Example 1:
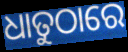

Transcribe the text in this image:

ଧାତୁଠାରେ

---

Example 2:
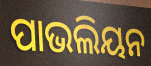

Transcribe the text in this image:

ପାଭଲିୟନ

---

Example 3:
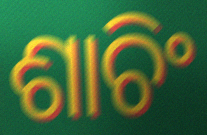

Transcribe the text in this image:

ଶାଚିଂ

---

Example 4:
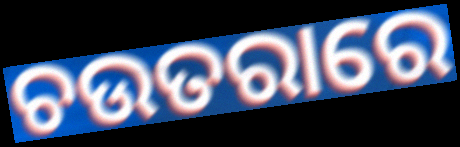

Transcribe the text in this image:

ଚଉତରାରେ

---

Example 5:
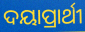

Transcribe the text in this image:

ଦୟାପ୍ରାର୍ଥୀ